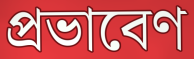
প্রভাবেণ